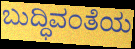
ಬುದ್ಧಿವಂತೆಯ